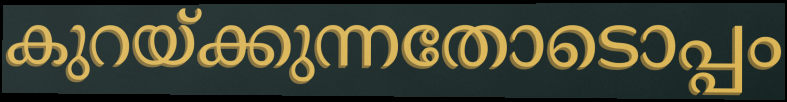
കുറയ്ക്കുന്നതോടൊപ്പം